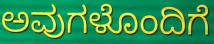
ಅವುಗಳೊಂದಿಗೆ